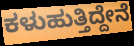
ಕಳುಹುತ್ತಿದ್ದೇನೆ